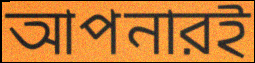
আপনারই